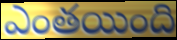
ఎంతయింది